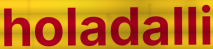
holadalli